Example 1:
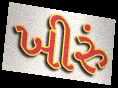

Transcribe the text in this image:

ખીરું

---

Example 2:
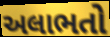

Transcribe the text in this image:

અલાભતો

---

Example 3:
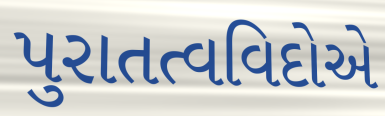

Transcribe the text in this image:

પુરાતત્વવિદોએ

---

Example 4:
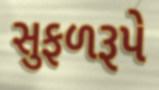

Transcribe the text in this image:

સુફળરૂપે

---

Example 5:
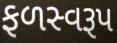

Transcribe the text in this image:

ફળસ્વરૂપ